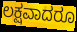
ಲಕ್ಷವಾದರೂ